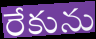
రేకును